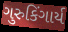
ગુરુકિંગાર્ય